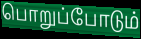
பொறுப்போடும்